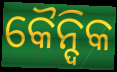
କୈନ୍ଦିକ